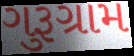
ગુરૂગ્રામ